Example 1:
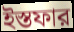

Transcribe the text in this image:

ইস্তফার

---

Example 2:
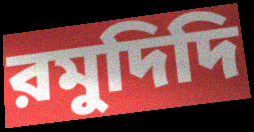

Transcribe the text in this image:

রমুদিদি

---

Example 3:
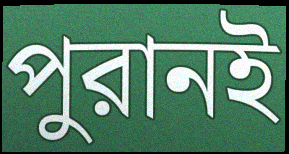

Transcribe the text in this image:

পুরানই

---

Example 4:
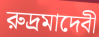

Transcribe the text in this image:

রুদ্রমাদেবী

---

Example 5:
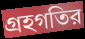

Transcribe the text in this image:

গ্রহগতির